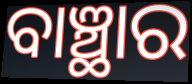
ବାଞ୍ଛାର